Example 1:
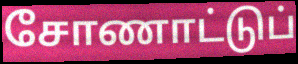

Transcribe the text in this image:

சோணாட்டுப்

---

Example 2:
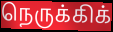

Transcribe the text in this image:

நெருக்கிக்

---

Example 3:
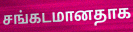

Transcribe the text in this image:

சங்கடமானதாக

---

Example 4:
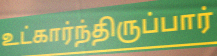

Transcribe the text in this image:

உட்கார்ந்திருப்பார்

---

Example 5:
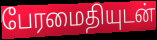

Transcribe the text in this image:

பேரமைதியுடன்